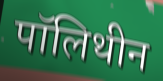
पॉलिथीन